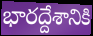
భారద్దేశానికి